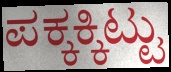
ಪಕ್ಕಕ್ಕಿಟ್ಟು